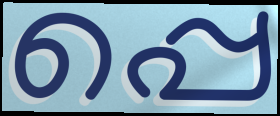
പ്പെ